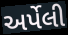
અર્પેલી